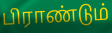
பிராண்டும்